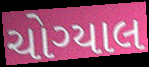
ચોગ્યાલ